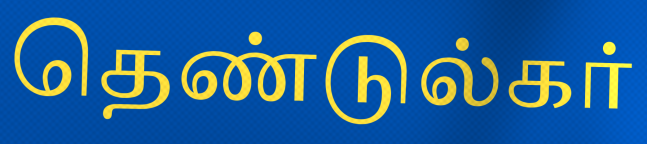
தெண்டுல்கர்